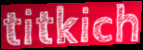
titkich